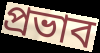
প্ৰভাব